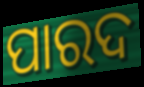
ପାରଦ